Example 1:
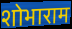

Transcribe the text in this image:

शोभाराम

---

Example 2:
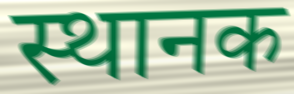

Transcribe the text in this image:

स्थानक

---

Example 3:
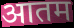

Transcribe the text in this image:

आतम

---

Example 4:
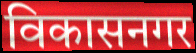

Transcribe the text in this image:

विकासनगर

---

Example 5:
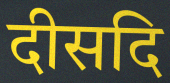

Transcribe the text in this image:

दीसदि